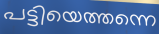
പട്ടിയെത്തന്നെ